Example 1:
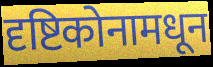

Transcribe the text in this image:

दृष्टिकोनामधून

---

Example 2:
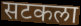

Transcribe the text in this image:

सटकला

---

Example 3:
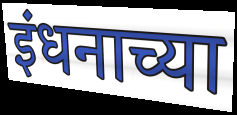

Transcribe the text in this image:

इंधनाच्या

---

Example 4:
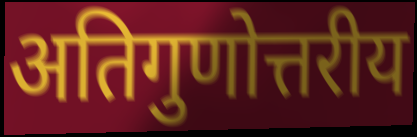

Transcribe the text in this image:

अतिगुणोत्तरीय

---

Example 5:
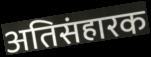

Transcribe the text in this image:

अतिसंहारक